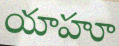
యాహూ